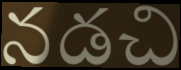
నడచి